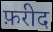
फ़रीद